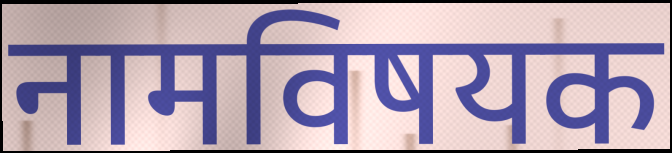
नामविषयक